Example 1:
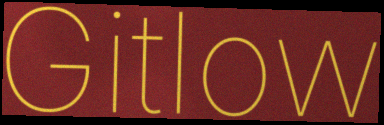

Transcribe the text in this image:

Gitlow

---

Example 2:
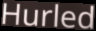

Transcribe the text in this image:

Hurled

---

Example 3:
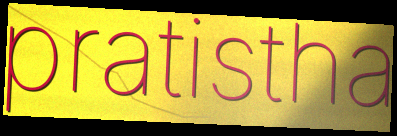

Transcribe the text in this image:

pratistha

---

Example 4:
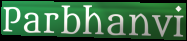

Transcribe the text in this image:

Parbhanvi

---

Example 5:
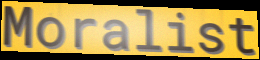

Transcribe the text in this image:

Moralist